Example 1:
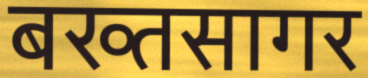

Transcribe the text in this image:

बख्तसागर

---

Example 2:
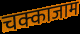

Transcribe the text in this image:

चक्काजाम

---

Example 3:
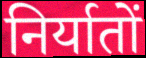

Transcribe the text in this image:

निर्यातों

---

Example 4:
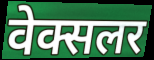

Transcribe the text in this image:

वेक्सलर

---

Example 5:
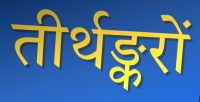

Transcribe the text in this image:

तीर्थङ्करों